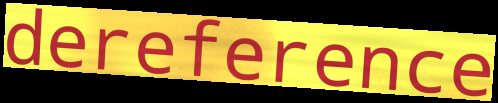
dereference